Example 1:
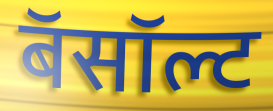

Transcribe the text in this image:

बॅसॉल्ट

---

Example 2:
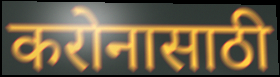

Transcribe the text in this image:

करोनासाठी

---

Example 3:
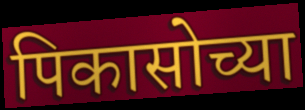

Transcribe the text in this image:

पिकासोच्या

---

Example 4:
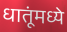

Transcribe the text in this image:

धातूंमध्ये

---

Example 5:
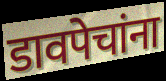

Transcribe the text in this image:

डावपेचांना